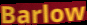
Barlow